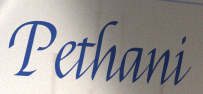
Pethani